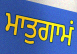
ਮਾਤੁਗਾਮਂ